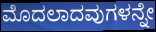
ಮೊದಲಾದವುಗಳನ್ನೇ